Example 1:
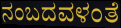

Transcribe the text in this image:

ನಂಬದವಳಂತೆ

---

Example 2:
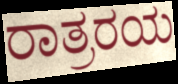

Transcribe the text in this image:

ರಾತ್ರರಯ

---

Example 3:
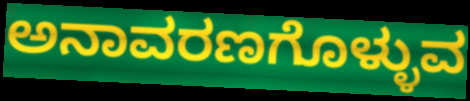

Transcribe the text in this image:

ಅನಾವರಣಗೊಳ್ಳುವ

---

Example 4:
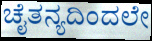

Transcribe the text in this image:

ಚೈತನ್ಯದಿಂದಲೇ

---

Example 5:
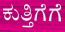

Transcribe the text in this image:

ಕುತ್ತಿಗೆಗೆ